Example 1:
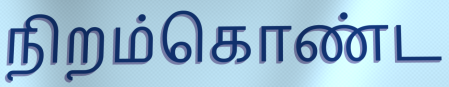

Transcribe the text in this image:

நிறம்கொண்ட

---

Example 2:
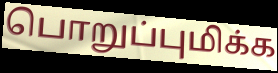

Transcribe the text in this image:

பொறுப்புமிக்க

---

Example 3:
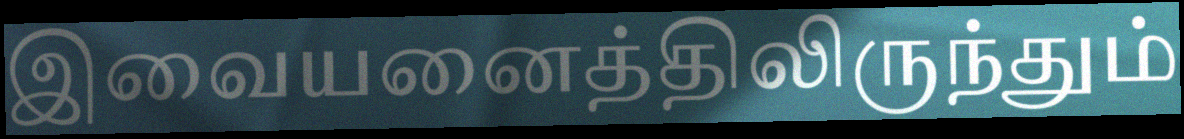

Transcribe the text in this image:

இவையனைத்திலிருந்தும்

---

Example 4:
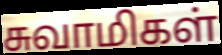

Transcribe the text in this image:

சுவாமிகள்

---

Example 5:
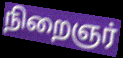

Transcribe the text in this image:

நிறைஞர்